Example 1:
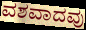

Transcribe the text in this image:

ವಶವಾದವು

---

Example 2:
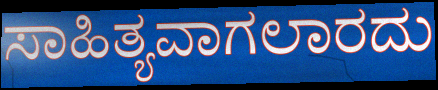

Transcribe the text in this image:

ಸಾಹಿತ್ಯವಾಗಲಾರದು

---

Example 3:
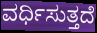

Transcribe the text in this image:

ವರ್ಧಿಸುತ್ತದೆ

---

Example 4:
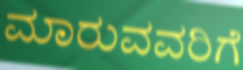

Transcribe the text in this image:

ಮಾರುವವರಿಗೆ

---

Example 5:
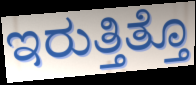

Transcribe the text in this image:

ಇರುತ್ತಿತ್ತೊ